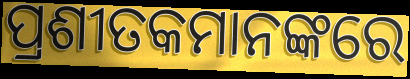
ପ୍ରଶୀତକମାନଙ୍କରେ